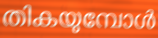
തികയുമ്പോൾ